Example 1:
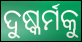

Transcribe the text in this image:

ଦୁଷ୍କର୍ମକୁ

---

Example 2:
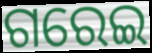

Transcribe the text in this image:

ଗରେଇ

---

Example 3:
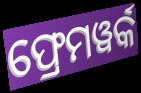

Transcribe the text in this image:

ଫ୍ରେମୱର୍କ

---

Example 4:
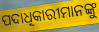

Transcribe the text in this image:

ପଦାଧିକାରୀମାନଙ୍କୁ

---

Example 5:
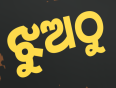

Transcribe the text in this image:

ଝୁଅଠୁ